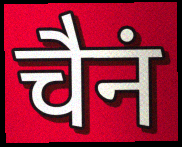
चैनं